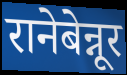
रानेबेन्नूर